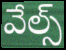
వేల్స్